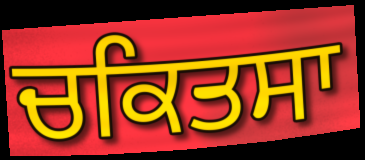
ਚਕਿਤਸਾ